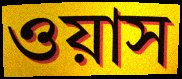
ওয়াস